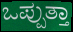
ಒಪ್ಪುತ್ತಾ